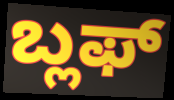
ಬ್ಲಫ್